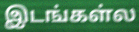
இடங்கள்ல